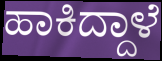
ಹಾಕಿದ್ದಾಳೆ